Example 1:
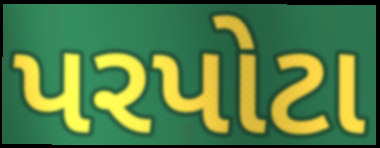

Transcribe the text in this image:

પરપોટા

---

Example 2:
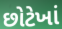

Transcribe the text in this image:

છોટેખાં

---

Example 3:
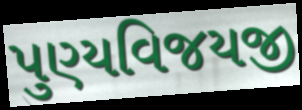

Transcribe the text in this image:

પુણ્યવિજયજી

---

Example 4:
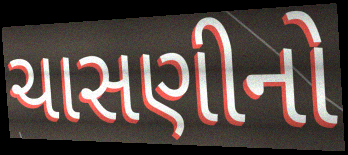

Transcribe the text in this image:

ચાસણીનો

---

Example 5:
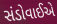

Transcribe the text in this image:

સંડોવાઈએ